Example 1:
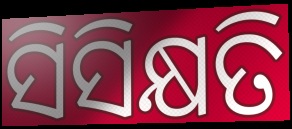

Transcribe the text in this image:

ସିସିକ୍ଷତି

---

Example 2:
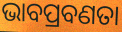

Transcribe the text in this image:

ଭାବପ୍ରବଣତା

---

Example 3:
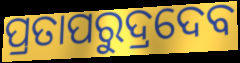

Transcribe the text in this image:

ପ୍ରତାପରୁଦ୍ରଦେବ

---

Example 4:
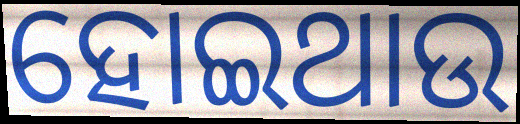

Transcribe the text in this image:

ହୋଇଥାଉ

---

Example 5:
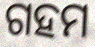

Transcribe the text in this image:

ଗହମ